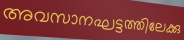
അവസാനഘട്ടത്തിലേക്കു